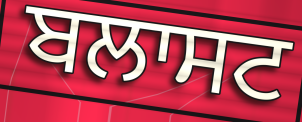
ਬਲਾਸਟ